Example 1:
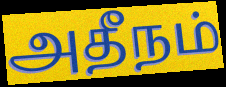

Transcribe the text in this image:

அதீநம்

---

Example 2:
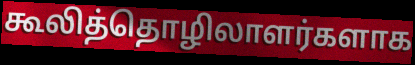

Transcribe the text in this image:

கூலித்தொழிலாளர்களாக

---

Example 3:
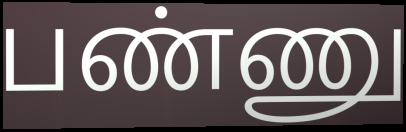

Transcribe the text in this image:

பண்ணு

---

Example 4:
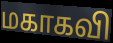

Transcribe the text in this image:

மகாகவி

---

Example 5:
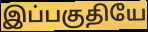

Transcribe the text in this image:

இப்பகுதியே